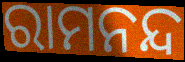
ରାମନନ୍ଦ